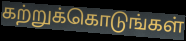
கற்றுக்கொடுங்கள்